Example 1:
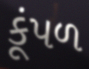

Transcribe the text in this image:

કૂંપળ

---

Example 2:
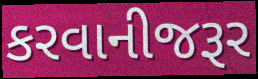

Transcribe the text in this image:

કરવાનીજરૂર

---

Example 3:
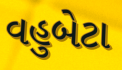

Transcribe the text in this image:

વહુબેટા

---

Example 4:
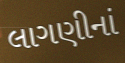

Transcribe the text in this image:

લાગણીનાં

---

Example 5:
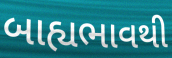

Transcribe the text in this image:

બાહ્યભાવથી